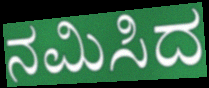
ನಮಿಸಿದ